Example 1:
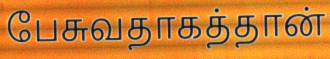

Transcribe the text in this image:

பேசுவதாகத்தான்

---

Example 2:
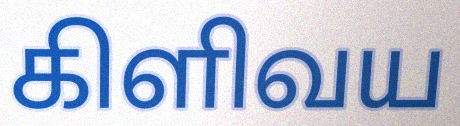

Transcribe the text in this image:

கிளிவய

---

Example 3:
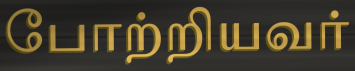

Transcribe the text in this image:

போற்றியவர்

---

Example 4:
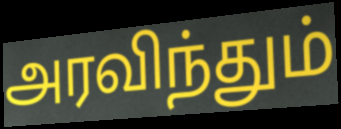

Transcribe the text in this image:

அரவிந்தும்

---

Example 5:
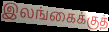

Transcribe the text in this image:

இலங்கைக்குத்